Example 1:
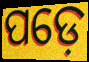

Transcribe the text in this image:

ପଡ଼େ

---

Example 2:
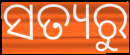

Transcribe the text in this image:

ସତ୍ୟରୁ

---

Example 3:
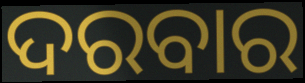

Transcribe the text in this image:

ଦରବାର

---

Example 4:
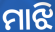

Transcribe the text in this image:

ମାଝି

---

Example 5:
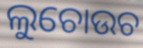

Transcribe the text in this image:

ଲୁଚୋଉଚ